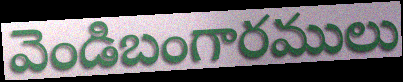
వెండిబంగారములు